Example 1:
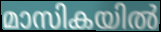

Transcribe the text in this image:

മാസികയിൽ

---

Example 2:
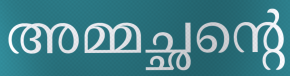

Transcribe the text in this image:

അമ്മച്ഛന്റെ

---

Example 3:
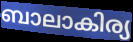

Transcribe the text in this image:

ബാലാകിര്യ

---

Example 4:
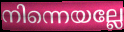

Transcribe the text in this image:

നിന്നെയല്ലേ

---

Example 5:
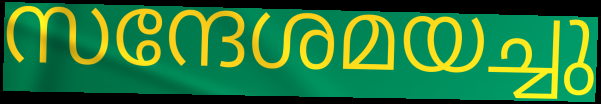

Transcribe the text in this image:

സന്ദേശമയച്ചു